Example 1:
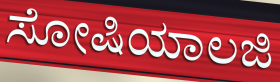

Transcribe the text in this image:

ಸೋಷಿಯಾಲಜಿ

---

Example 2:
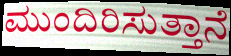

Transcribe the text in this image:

ಮುಂದಿರಿಸುತ್ತಾನೆ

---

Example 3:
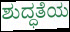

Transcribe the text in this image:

ಶುದ್ಧತೆಯ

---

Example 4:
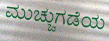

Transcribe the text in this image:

ಮುಚ್ಚುಗಡೆಯ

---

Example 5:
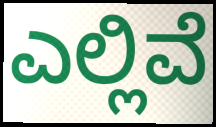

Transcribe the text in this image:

ಎಲ್ಲಿವೆ